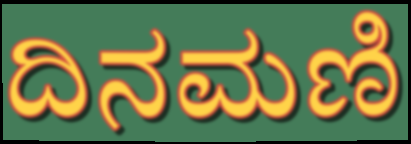
ದಿನಮಣಿ